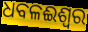
ଧବଳଈଶ୍ବର